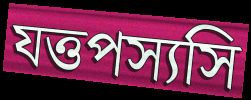
যত্তপস্যসি